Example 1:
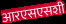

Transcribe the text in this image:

आरएसएसशी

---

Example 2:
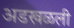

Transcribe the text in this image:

अडखळली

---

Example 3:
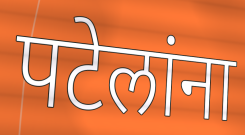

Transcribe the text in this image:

पटेलांना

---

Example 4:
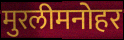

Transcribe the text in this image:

मुरलीमनोहर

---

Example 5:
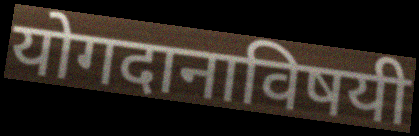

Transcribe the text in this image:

योगदानाविषयी